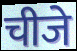
चीजे